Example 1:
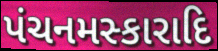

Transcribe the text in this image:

પંચનમસ્કારાદિ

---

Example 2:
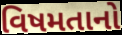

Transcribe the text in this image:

વિષમતાનો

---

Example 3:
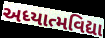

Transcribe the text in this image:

અધ્યાત્મવિદ્યા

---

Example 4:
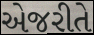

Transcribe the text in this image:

એજરીતે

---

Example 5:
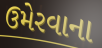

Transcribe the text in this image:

ઉમેરવાના